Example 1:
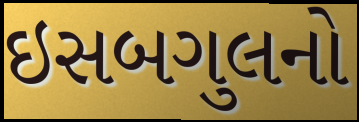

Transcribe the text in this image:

ઇસબગુલનો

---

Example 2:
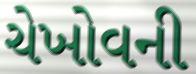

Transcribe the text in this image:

ચેખોવની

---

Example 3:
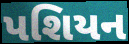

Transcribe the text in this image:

પશિયન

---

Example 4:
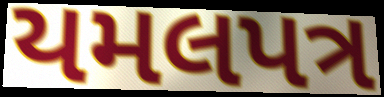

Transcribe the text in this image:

યમલપત્ર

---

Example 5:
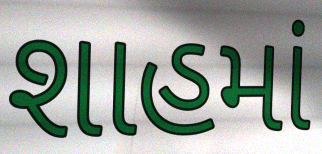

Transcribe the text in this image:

શાહમાં